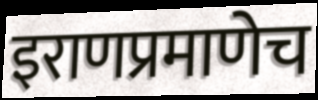
इराणप्रमाणेच